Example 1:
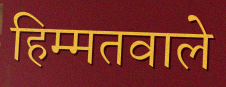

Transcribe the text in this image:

हिम्मतवाले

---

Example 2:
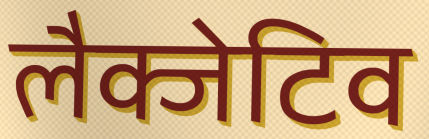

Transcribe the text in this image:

लैक्जेटिव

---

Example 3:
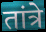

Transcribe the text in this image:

तांत्रे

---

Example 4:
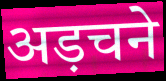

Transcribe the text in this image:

अड़चने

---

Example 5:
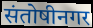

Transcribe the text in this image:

संतोषीनगर